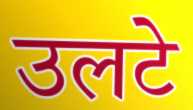
उलटे